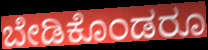
ಬೇಡಿಕೊಂಡರೂ